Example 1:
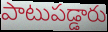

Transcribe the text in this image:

పాటుపడ్డారు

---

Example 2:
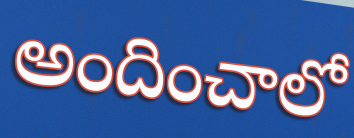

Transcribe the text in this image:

అందించాలో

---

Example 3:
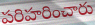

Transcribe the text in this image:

పరిహరించారు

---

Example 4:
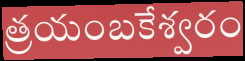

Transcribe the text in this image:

త్రయంబకేశ్వరం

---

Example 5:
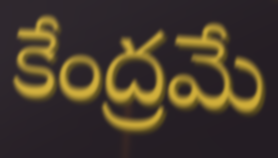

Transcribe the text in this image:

కేంద్రమే